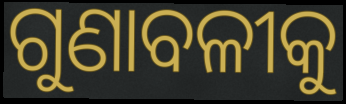
ଗୁଣାବଳୀକୁ